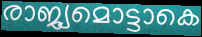
രാജ്യമൊട്ടാകെ